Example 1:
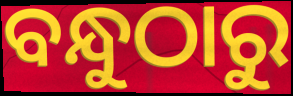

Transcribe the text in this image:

ବନ୍ଧୁଠାରୁ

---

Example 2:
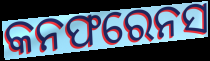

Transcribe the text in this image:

କନଫରେନସ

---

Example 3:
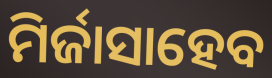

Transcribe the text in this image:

ମିର୍ଜାସାହେବ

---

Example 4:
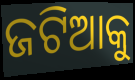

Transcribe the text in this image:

ଜଟିଆକୁ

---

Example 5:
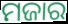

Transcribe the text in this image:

ମଜାର